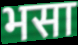
भसा